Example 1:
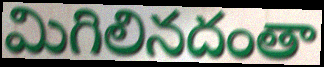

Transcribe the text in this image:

మిగిలినదంతా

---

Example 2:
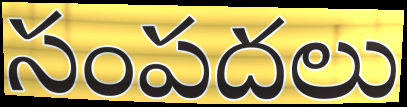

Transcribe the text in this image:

సంపదలు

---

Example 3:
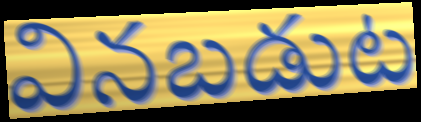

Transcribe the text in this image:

వినబడుట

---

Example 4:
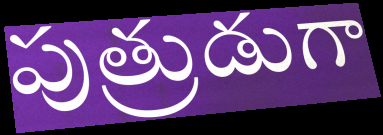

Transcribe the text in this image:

పుత్రుడుగా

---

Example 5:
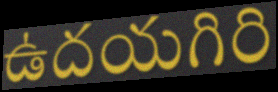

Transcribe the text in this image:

ఉదయగిరి